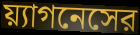
য়্যাগনেসের